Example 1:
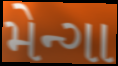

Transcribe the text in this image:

મેન્ગા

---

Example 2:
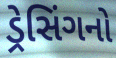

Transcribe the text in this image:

ડ્રેસિંગનો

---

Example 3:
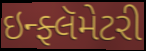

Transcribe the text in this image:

ઇન્ફ્લૅમેટરી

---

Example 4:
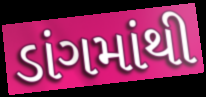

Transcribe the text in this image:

ડાંગમાંથી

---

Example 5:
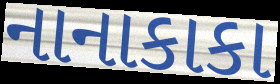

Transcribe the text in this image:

નાનાકાકા